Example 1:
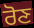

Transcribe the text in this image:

ਰੋਣ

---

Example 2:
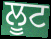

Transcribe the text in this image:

ਲੂਟ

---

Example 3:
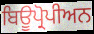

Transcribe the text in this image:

ਬਿਊਪ੍ਰੋਪੀਅਨ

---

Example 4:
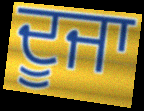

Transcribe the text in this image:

ਦੂਜਾ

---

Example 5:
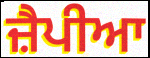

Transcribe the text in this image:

ਜ਼ੈਪੀਆ